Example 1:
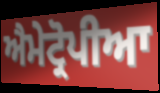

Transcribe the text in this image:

ਐਮੇਟ੍ਰੋਪੀਆ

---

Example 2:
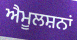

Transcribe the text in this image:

ਐਮੂਲਸ਼ਨਾਂ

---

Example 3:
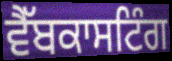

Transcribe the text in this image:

ਵੈੱਬਕਾਸਟਿੰਗ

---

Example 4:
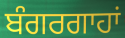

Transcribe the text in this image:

ਬੰਗਰਗਾਹਾਂ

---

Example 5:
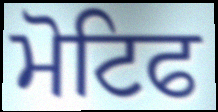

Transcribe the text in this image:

ਮੋਟਿਫ